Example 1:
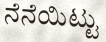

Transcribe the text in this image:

ನೆನೆಯಿಟ್ಟು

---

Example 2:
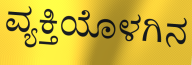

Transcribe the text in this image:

ವ್ಯಕ್ತಿಯೊಳಗಿನ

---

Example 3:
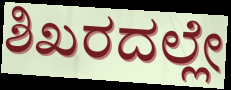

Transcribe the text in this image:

ಶಿಖರದಲ್ಲೇ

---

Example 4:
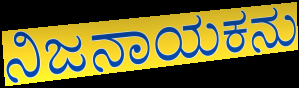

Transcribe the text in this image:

ನಿಜನಾಯಕನು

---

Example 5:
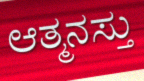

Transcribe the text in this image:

ಆತ್ಮನಸ್ತು